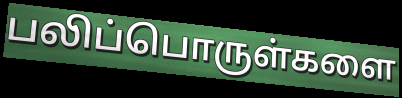
பலிப்பொருள்களை